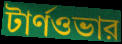
টার্ণওভার